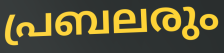
പ്രബലരും